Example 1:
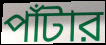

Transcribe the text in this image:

পাঁটার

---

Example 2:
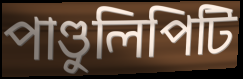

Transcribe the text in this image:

পাণ্ডুলিপিটি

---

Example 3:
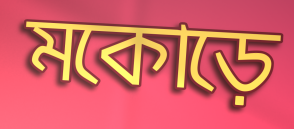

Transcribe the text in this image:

মকোড়ে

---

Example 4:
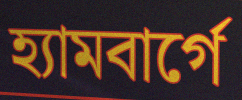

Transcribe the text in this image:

হ্যামবার্গে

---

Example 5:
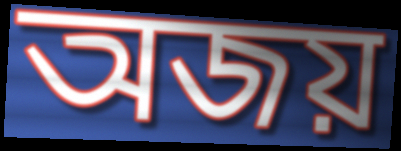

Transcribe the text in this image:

অজয়